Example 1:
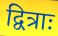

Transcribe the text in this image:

द्वित्राः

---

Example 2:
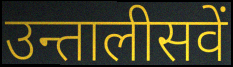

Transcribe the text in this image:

उन्तालीसवें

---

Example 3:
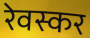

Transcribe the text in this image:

रेवस्कर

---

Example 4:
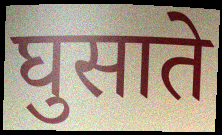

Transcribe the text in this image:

घुसाते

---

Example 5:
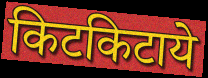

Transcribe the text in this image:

किटकिटाये